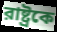
রাষ্ট্রকে